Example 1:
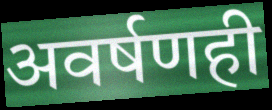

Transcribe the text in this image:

अवर्षणही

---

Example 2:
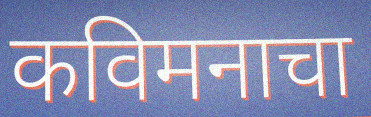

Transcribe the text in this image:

कविमनाचा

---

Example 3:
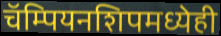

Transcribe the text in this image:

चॅम्पियनशिपमध्येही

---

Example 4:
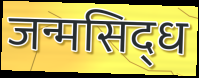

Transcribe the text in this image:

जन्मसिद्ध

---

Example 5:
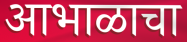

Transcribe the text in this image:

आभाळाचा